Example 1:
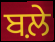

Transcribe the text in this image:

ਬਲ਼ੇ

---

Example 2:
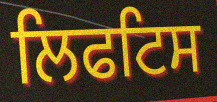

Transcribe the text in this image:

ਲਿਫਟਿਸ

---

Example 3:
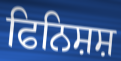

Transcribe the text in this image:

ਫਿਨਿਸ਼ਸ਼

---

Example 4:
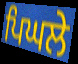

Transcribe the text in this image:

ਪਿਘਲੇ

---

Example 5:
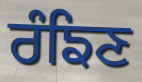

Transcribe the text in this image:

ਰੰਙਿਣ